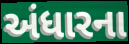
અંધારના